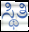
ಸ್ಥಿತಿ